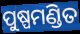
ପୁଷ୍ପମଣ୍ଡିତ